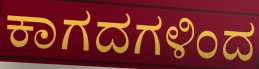
ಕಾಗದಗಳಿಂದ